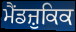
ਮੈਂਡਜ਼ੁਕਿਕ